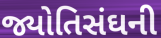
જ્યોતિસંઘની